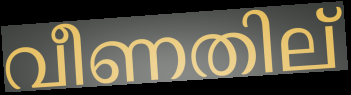
വീണതില്